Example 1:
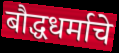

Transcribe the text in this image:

बौद्धधर्माचे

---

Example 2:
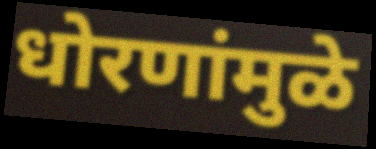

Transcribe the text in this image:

धोरणांमुळे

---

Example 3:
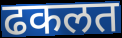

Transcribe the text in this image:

ढकलत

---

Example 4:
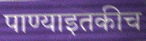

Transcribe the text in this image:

पाण्याइतकीच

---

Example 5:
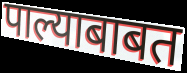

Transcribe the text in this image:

पाल्याबाबत